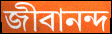
জীবানন্দ